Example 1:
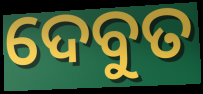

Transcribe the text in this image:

ଦେବୁତ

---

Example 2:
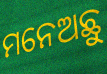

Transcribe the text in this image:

ମନେଅଛୁ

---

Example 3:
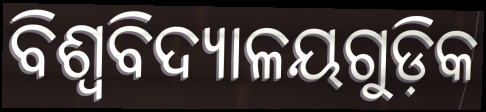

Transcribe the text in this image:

ବିଶ୍ଵବିଦ୍ୟାଳୟଗୁଡ଼ିକ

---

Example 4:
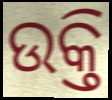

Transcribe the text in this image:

ଉକ୍ତି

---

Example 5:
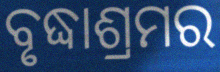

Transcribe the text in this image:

ବୃଦ୍ଧାଶ୍ରମର